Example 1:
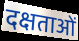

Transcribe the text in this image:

दक्षताओं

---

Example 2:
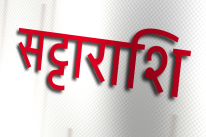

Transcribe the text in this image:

सट्टाराशि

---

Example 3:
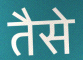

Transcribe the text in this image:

तैसे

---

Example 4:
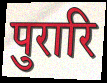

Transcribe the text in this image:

पुरारि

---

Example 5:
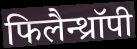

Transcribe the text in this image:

फिलैन्थ्रॉपी